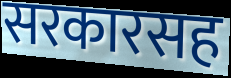
सरकारसह